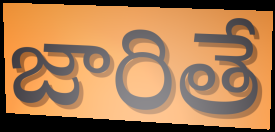
జారితే